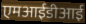
एमआईडीआई